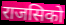
राजसिको